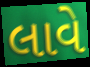
લાવે